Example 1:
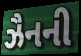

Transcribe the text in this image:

ઝૈનની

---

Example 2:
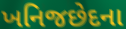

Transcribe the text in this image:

ખનિજછેદના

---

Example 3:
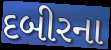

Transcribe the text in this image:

દબીરના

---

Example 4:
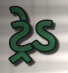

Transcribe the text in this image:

ટ્રેડ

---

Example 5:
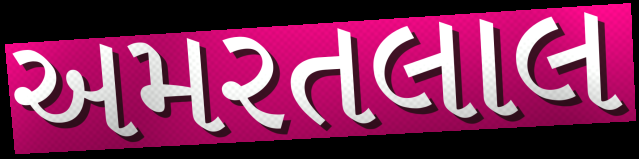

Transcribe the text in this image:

અમરતલાલ